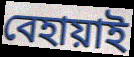
বেহায়াই